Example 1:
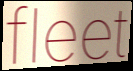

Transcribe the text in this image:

fleet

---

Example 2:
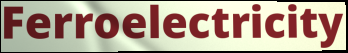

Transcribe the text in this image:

Ferroelectricity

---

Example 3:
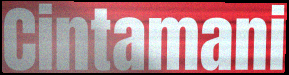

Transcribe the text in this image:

Cintamani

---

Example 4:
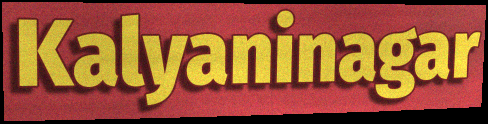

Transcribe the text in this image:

Kalyaninagar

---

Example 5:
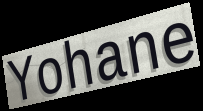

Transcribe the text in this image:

Yohane